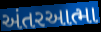
અંતરઆત્મા